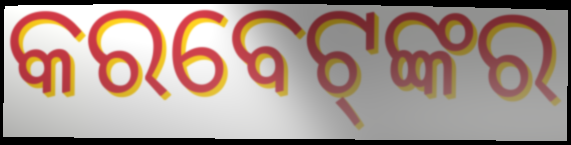
କରବେଟ୍‌ଙ୍କର